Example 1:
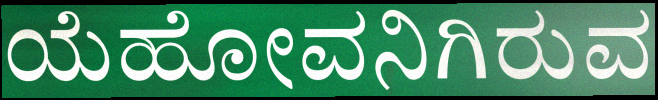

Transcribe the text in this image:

ಯೆಹೋವನಿಗಿರುವ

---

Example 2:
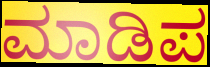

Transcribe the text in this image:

ಮಾಡಿಪ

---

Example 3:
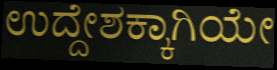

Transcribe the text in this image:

ಉದ್ದೇಶಕ್ಕಾಗಿಯೇ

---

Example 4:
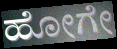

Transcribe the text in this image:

ಹೋಗೇ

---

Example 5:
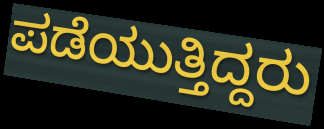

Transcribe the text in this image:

ಪಡೆಯುತ್ತಿದ್ದರು